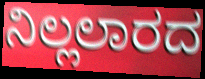
ನಿಲ್ಲಲಾರದ